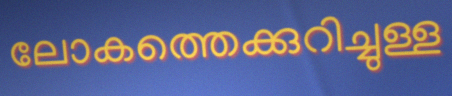
ലോകത്തെക്കുറിച്ചുള്ള